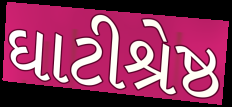
ઘાટીશ્રેષ્ઠ